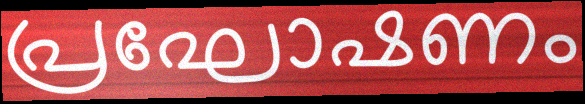
പ്രഘോഷണം